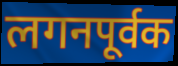
लगनपूर्वक